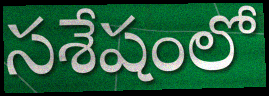
సశేషంలో